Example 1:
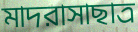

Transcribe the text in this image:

মাদরাসাছাত্র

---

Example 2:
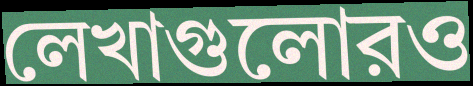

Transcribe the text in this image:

লেখাগুলোরও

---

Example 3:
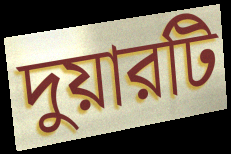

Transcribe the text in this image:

দুয়ারটি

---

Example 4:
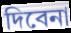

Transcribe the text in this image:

দিবেনা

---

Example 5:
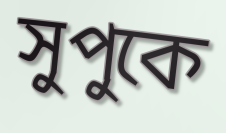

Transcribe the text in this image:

সুপুকে